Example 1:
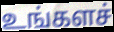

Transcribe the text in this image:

உங்களச்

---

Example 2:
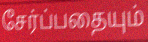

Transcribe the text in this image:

சேர்ப்பதையும்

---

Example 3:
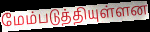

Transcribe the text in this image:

மேம்படுத்தியுள்ளன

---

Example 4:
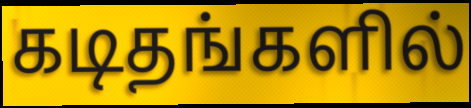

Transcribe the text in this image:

கடிதங்களில்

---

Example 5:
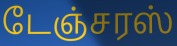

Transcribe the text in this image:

டேஞ்சரஸ்